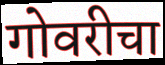
गोवरीचा